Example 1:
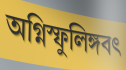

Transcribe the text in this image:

অগ্নিস্ফুলিঙ্গবৎ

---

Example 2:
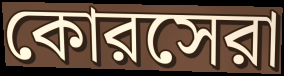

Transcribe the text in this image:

কোরসেরা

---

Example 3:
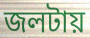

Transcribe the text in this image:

জলটায়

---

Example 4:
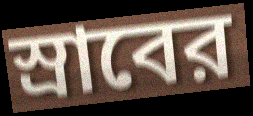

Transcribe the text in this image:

স্রাবের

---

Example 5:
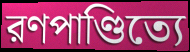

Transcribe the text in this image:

রণপাণ্ডিত্যে